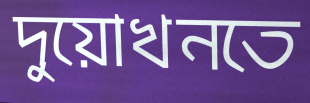
দুয়োখনতে